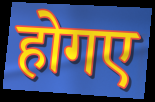
होगए